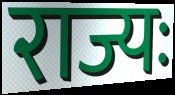
राज्यः